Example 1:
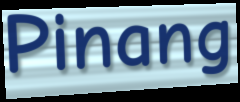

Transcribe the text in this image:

Pinang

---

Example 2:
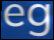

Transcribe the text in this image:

eg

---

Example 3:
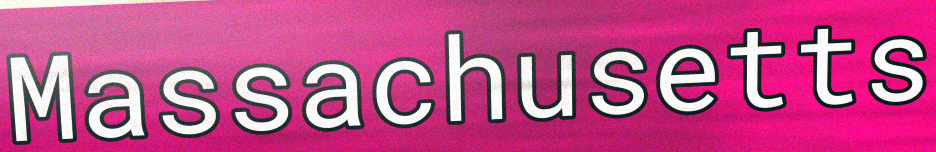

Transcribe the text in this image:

Massachusetts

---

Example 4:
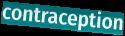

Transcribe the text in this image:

contraception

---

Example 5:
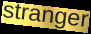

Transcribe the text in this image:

stranger